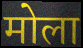
मोला